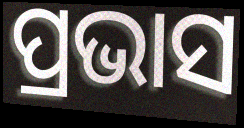
ପ୍ରଭାସ